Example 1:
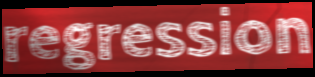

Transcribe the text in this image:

regression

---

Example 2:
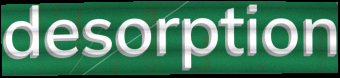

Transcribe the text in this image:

desorption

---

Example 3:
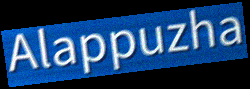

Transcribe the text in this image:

Alappuzha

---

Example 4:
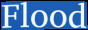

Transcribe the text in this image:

Flood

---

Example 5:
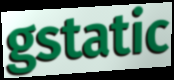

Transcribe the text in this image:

gstatic